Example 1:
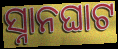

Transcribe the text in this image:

ସ୍ନାନଘାଟ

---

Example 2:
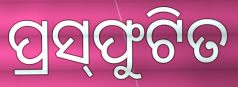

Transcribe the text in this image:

ପ୍ରସ୍‌ଫୁଟିତ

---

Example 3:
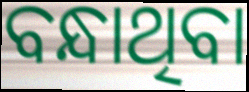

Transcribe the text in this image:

ବନ୍ଧାଥିବା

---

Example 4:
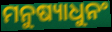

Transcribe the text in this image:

ମନୁଷ୍ୟାଧୁନଂ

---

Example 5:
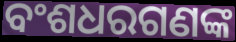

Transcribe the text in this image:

ବଂଶଧରଗଣଙ୍କ